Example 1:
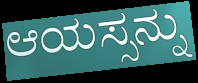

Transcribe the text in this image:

ಆಯಸ್ಸನ್ನು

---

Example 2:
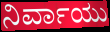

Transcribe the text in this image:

ನಿರ್ವಾಯು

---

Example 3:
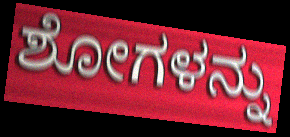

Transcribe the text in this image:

ಶೋಗಳನ್ನು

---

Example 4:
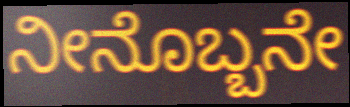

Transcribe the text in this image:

ನೀನೊಬ್ಬನೇ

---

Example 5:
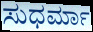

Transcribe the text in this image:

ಸುಧರ್ಮಾ